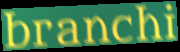
branchi